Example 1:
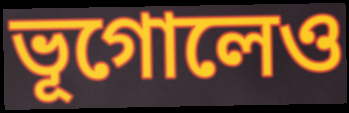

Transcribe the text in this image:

ভূগোলেও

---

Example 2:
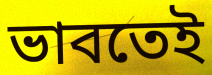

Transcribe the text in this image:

ভাবতেই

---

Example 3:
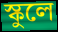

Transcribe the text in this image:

স্কুলে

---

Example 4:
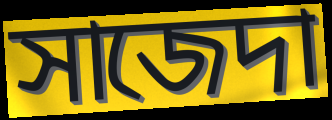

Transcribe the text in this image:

সাজেদা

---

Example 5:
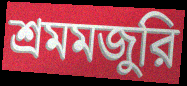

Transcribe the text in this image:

শ্রমমজুরি